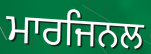
ਮਾਰਜਿਨਲ